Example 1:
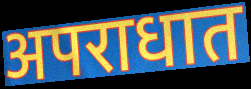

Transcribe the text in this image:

अपराधात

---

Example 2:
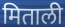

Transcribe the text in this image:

मिताली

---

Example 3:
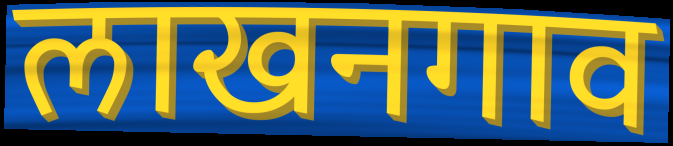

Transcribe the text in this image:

लाखनगाव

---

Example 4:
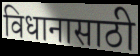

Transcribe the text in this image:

विधानासाठी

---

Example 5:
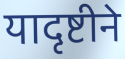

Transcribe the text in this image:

यादृष्टीने